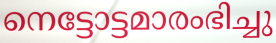
നെട്ടോട്ടമാരംഭിച്ചു